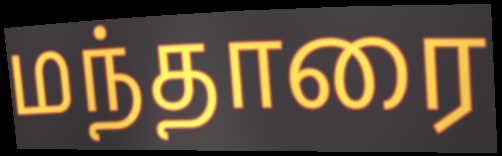
மந்தாரை